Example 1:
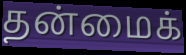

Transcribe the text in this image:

தன்மைக்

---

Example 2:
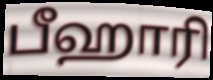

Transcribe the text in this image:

பீஹாரி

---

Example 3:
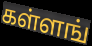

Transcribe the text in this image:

கள்ளங்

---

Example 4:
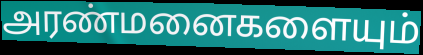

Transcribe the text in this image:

அரண்மனைகளையும்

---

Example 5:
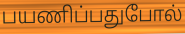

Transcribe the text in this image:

பயணிப்பதுபோல்